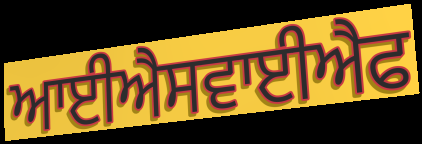
ਆਈਐਸਵਾਈਐਫ